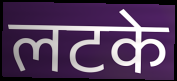
लटके